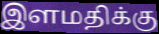
இளமதிக்கு